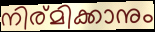
നിര്മിക്കാനും